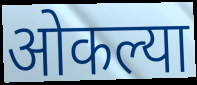
ओकल्या